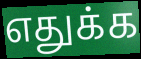
எதுக்க